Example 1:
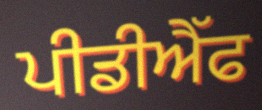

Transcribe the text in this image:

ਪੀਡੀਐੱਫ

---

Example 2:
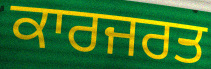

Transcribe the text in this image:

ਕਾਰਜਰਤ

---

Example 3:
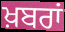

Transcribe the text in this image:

ਖ਼ਬਰਾਂ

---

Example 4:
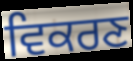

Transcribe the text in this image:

ਵਿਕਰਣ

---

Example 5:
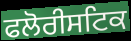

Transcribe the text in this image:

ਫਲੋਰੀਸਟਿਕ